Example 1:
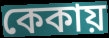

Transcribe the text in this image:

কেকায়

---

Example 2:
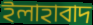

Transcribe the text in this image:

ইলাহাবাদ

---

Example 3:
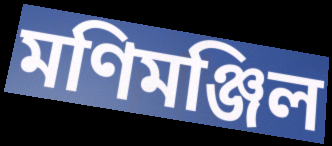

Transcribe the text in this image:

মণিমঞ্জিল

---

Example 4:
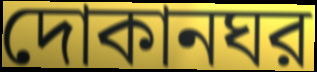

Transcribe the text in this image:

দোকানঘর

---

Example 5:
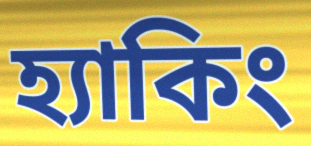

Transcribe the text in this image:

হ্যাকিং